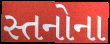
સ્તનોના